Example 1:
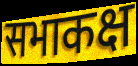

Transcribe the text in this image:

सभाकक्ष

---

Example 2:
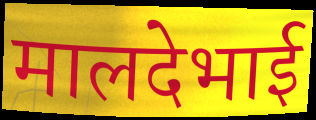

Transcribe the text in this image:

मालदेभाई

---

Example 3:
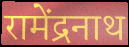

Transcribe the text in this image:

रामेंद्रनाथ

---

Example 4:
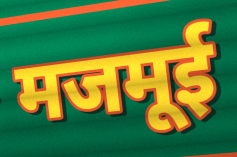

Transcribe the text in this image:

मजमूई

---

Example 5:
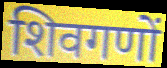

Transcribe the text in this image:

शिवगणों